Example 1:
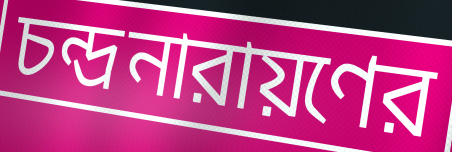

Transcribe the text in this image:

চন্দ্রনারায়ণের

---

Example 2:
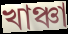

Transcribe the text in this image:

খাঞ্চা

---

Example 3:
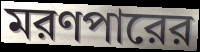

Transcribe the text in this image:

মরণপারের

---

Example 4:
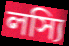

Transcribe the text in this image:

লস্যি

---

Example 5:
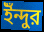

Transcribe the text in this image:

ইঁন্দুর